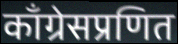
काँग्रेसप्रणित